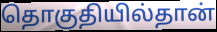
தொகுதியில்தான்